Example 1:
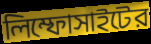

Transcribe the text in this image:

লিম্ফোসাইটের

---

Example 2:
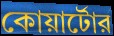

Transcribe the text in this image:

কোয়ার্টোর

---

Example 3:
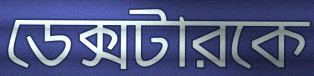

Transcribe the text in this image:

ডেক্সটারকে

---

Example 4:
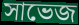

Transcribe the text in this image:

সাভেজ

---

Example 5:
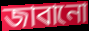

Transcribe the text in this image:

জাবানো